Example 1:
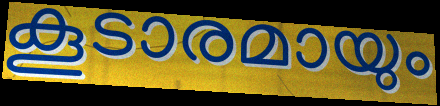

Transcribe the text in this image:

കൂടാരമായും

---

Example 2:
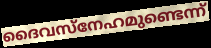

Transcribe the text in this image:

ദൈവസ്നേഹമുണ്ടെന്ന്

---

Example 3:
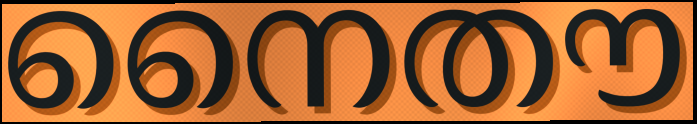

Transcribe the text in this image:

നൈതൗ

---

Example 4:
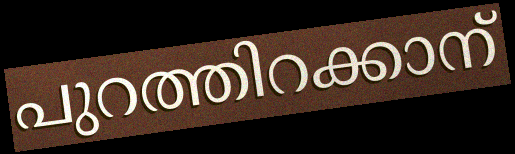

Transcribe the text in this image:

പുറത്തിറക്കാന്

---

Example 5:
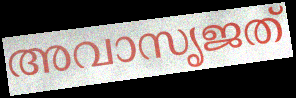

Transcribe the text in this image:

അവാസൃജത്